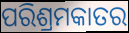
ପରିଶ୍ରମକାତର